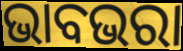
ଭାବଭରା